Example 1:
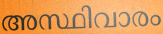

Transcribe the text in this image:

അസ്ഥിവാരം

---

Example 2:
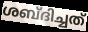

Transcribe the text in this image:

ശബ്ദിച്ചത്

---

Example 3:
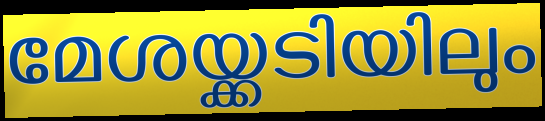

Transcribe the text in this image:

മേശയ്ക്കടിയിലും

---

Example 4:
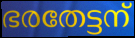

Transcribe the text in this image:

ഭരതേട്ടന്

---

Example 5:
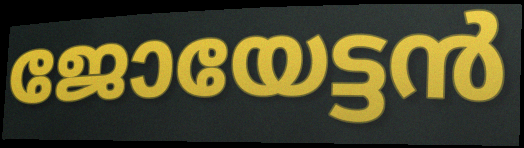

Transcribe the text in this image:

ജോയേട്ടൻ